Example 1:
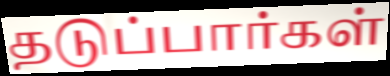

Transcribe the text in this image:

தடுப்பார்கள்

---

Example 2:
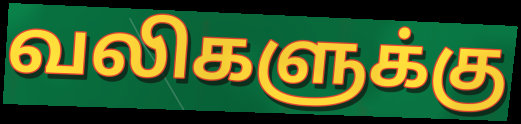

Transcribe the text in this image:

வலிகளுக்கு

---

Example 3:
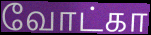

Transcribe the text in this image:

வோட்கா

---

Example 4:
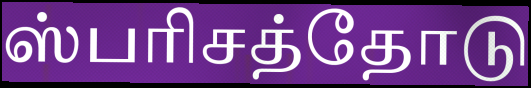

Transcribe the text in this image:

ஸ்பரிசத்தோடு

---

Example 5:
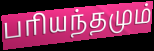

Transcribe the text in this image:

பரியந்தமும்